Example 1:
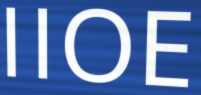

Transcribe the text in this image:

IIOE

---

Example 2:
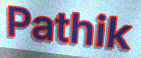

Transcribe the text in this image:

Pathik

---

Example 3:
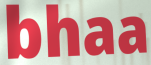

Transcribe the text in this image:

bhaa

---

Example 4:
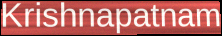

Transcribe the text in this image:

Krishnapatnam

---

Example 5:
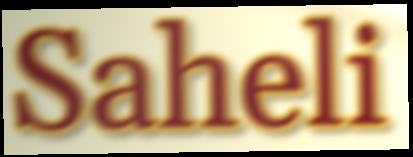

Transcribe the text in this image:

Saheli